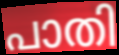
പാതി